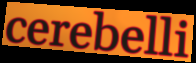
cerebelli